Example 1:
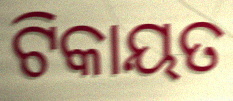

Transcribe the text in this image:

ଟିକାୟତ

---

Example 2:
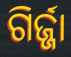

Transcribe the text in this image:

ଗିର୍ଜ୍ଜା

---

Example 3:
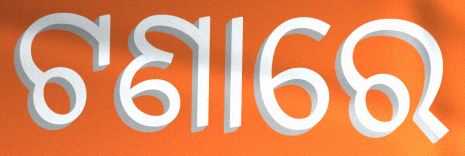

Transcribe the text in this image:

ଟଣାରେ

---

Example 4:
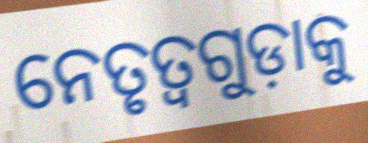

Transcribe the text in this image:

ନେତୃତ୍ୱଗୁଡ଼ାକୁ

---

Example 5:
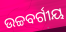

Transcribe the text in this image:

ଉଚ୍ଚବର୍ଗୀୟ